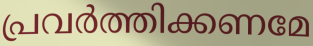
പ്രവർത്തിക്കണമേ